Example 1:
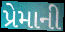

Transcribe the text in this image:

પ્રેમાની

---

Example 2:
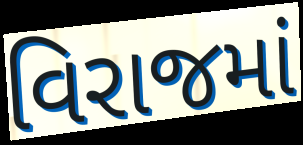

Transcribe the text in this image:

વિરાજમાં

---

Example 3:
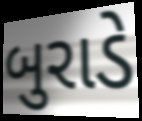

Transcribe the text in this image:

બુરાડે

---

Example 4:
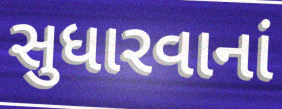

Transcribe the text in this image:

સુધારવાનાં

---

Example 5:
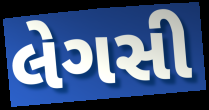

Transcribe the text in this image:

લેગસી